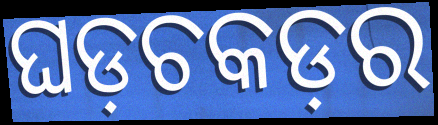
ଘଡ଼ଚକଡ଼ର